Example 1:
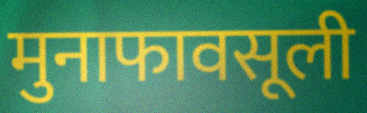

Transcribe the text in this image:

मुनाफावसूली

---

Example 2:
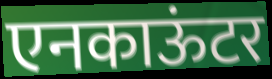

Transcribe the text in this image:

एनकाऊंटर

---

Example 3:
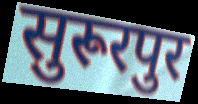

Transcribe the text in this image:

सुरूरपुर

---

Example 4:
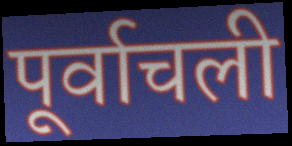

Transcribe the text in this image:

पूर्वाचली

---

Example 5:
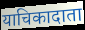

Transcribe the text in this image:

याचिकादाता